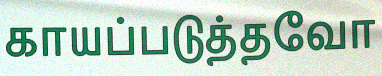
காயப்படுத்தவோ